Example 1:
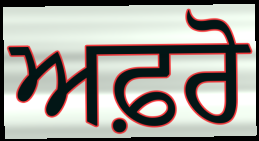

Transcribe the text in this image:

ਅਫ਼ਰੋ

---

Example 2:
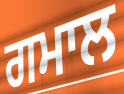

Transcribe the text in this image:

ਗਮਾਲ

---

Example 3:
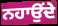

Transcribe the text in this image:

ਨਹਾਉਂਦੇ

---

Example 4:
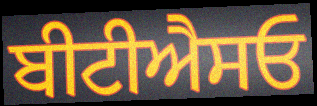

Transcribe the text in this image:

ਬੀਟੀਐਸਓ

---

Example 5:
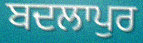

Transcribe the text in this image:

ਬਦਲਾਪੁਰ